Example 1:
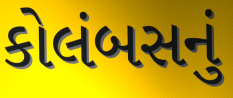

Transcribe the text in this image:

કોલંબસનું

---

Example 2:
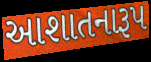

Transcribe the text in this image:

આશાતનારૂપ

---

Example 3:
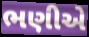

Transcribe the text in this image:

ભણીએ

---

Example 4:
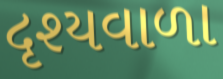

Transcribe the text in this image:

દૃશ્યવાળા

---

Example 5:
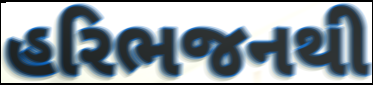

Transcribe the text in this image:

હરિભજનથી